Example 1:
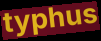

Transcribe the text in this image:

typhus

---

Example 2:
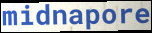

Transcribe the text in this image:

midnapore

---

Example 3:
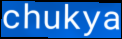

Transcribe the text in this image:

chukya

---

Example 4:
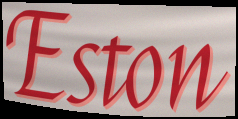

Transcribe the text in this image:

Eston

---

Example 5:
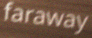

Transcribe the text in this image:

faraway